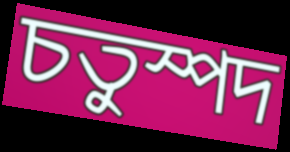
চতুস্পদ